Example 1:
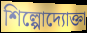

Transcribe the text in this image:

শিল্পোদ্যোক্তা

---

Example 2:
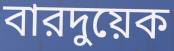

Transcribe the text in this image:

বারদুয়েক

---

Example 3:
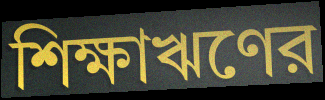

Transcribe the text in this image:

শিক্ষাঋণের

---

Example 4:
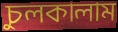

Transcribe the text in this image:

চুলকালাম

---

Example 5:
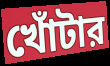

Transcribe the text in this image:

খোঁটার